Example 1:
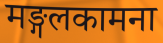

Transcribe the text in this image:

मङ्गलकामना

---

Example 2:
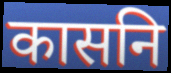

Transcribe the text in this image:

कासनि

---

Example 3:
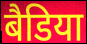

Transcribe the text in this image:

बैडिया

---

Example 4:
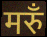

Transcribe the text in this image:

मरुँ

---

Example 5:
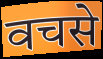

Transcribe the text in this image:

वचसे